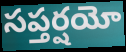
సప్తర్షయో